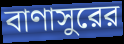
বাণাসুরের